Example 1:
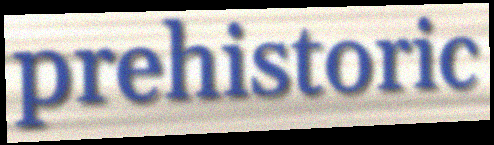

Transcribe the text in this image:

prehistoric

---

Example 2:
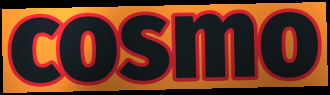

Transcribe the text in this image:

cosmo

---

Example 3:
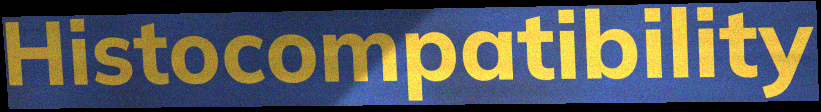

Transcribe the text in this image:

Histocompatibility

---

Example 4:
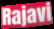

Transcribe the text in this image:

Rajavi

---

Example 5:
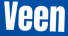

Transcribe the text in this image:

Veen